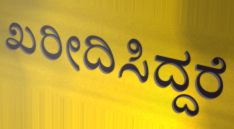
ಖರೀದಿಸಿದ್ದರೆ